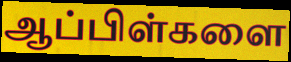
ஆப்பிள்களை